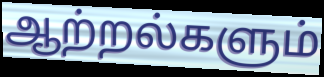
ஆற்றல்களும்